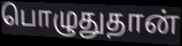
பொழுதுதான்